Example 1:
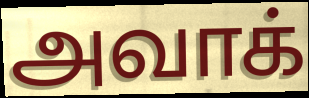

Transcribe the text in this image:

அவாக்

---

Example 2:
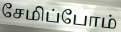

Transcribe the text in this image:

சேமிப்போம்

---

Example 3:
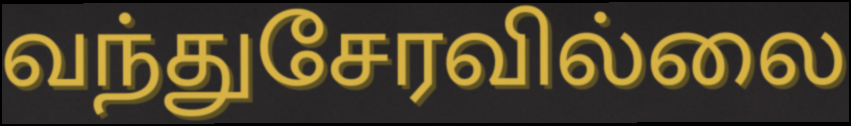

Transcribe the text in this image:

வந்துசேரவில்லை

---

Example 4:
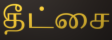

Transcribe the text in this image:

தீட்சை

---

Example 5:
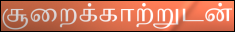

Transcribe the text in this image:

சூறைக்காற்றுடன்